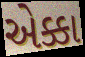
એક્કા